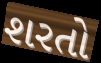
શરતો